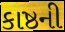
કાષ્ઠની